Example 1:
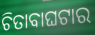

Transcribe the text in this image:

ଚିତାବାଘଟାର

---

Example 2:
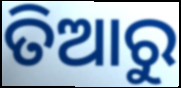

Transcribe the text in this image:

ତିଆରୁ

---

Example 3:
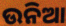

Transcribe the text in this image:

ଉନିଆ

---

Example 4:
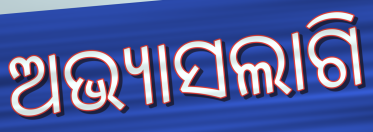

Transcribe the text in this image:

ଅଭ୍ୟାସଲାଗି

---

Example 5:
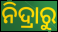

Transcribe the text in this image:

ନିଦ୍ରାରୁ